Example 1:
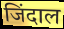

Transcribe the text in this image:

जिंदाल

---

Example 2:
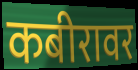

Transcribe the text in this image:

कबीरावर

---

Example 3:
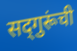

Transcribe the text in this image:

सद्‌गुरूंची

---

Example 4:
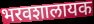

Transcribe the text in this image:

भरवशालायक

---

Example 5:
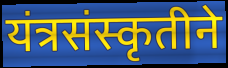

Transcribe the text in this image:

यंत्रसंस्कृतीने